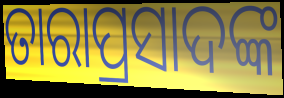
ତାରାପ୍ରସାଦଙ୍କ